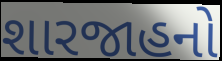
શારજાહનો